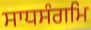
ਸਾਧਸੰਗਮਿ